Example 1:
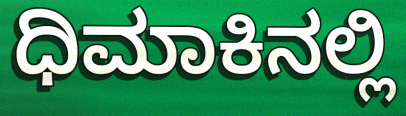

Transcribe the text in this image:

ಧಿಮಾಕಿನಲ್ಲಿ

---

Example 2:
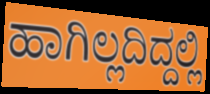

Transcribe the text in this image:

ಹಾಗಿಲ್ಲದಿದ್ದಲ್ಲಿ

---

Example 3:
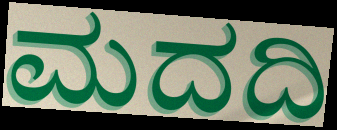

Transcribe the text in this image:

ಮದದಿ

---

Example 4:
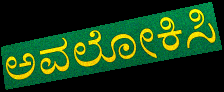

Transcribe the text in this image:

ಅವಲೋಕಿಸಿ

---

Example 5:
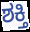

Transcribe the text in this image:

ಶಕ್ತಿ